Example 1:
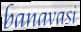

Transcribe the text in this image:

banavasi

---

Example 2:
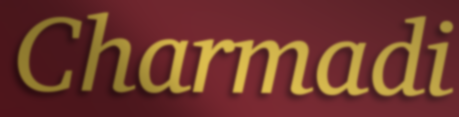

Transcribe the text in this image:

Charmadi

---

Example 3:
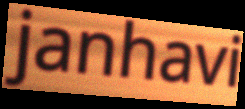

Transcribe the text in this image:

janhavi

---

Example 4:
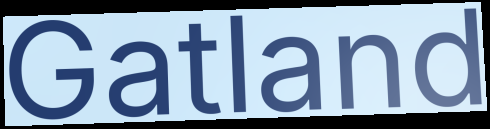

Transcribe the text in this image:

Gatland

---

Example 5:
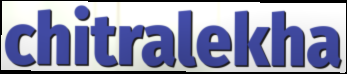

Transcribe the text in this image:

chitralekha